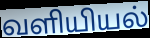
வளியியல்